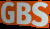
GBS